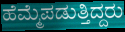
ಹೆಮ್ಮೆಪಡುತ್ತಿದ್ದರು